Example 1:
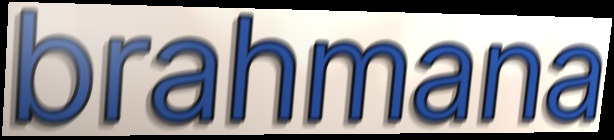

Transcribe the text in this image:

brahmana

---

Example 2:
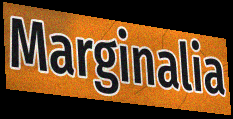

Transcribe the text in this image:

Marginalia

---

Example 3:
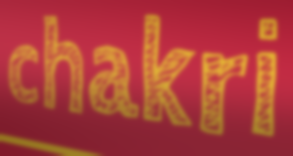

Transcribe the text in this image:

chakri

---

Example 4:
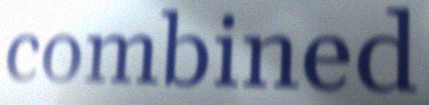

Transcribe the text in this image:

combined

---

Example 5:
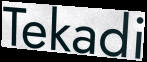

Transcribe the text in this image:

Tekadi